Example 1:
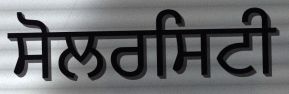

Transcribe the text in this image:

ਸੋਲਰਸਿਟੀ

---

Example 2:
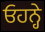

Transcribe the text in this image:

ਓਹਨ੍ਹੇ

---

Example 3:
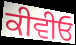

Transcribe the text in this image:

ਕੀਵੀਓ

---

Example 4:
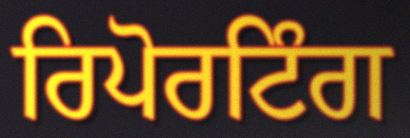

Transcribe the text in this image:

ਰਿਪੋਰਟਿੰਗ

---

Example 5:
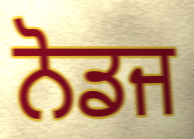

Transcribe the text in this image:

ਨੋਡਜ